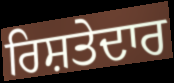
ਰਿਸ਼ਤੇਦਾਰ